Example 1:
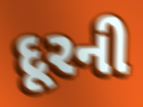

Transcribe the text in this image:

દૂરની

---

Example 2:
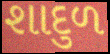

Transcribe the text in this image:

શાદુળ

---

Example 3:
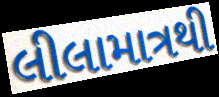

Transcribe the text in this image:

લીલામાત્રથી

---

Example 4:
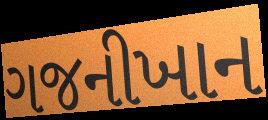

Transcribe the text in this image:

ગજનીખાન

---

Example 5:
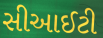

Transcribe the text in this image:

સીઆઈટી